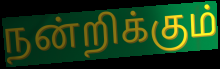
நன்றிக்கும்